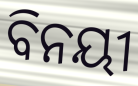
ବିନୟୀ